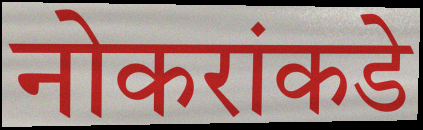
नोकरांकडे